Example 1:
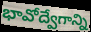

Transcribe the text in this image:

భావోద్వేగాన్ని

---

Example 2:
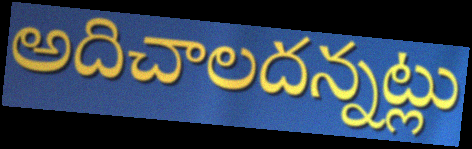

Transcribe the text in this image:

అదిచాలదన్నట్లు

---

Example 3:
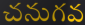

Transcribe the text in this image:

చనుగవ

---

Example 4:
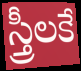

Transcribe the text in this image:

స్త్రీలకే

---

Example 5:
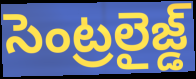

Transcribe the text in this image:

సెంట్రలైజ్డ్